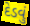
દેડવું